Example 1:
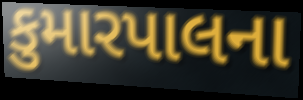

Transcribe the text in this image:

કુમારપાલના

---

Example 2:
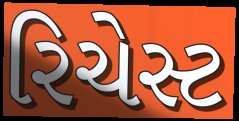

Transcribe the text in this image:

રિચેસ્ટ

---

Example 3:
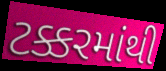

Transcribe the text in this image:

ટક્કરમાંથી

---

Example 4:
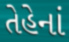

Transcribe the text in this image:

તેહેનાં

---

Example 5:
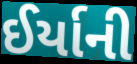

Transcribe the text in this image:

ઈર્યાની